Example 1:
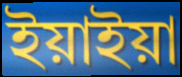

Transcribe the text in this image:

ইয়াইয়া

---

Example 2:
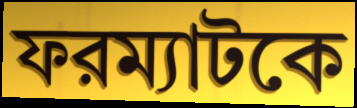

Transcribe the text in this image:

ফরম্যাটকে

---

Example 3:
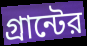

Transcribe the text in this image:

গ্রান্টের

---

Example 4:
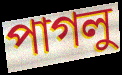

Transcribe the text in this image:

পাগলু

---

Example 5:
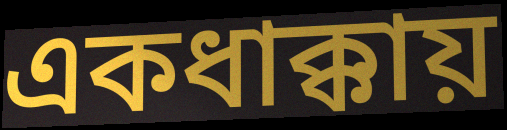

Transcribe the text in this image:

একধাক্কায়